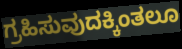
ಗ್ರಹಿಸುವುದಕ್ಕಿಂತಲೂ